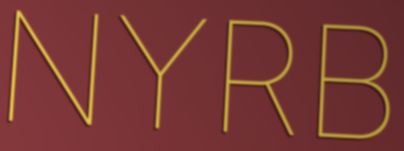
NYRB